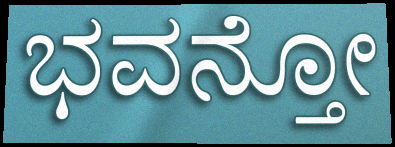
ಭವನ್ತೋ